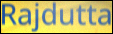
Rajdutta